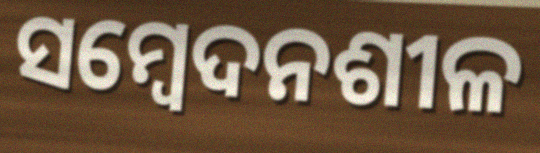
ସମ୍ବେଦନଶୀଳ